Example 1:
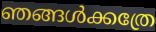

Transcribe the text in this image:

ഞങ്ങൾക്കത്രേ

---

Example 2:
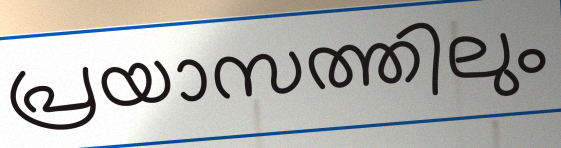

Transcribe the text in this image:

പ്രയാസത്തിലും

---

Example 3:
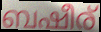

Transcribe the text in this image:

ബഷീര്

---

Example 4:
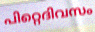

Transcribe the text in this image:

പിറ്റെദിവസം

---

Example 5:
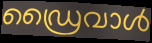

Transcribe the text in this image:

ഡ്രൈവാൾ